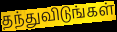
தந்துவிடுங்கள்